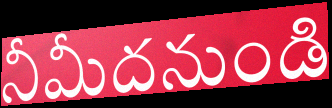
నీమీదనుండి